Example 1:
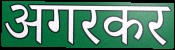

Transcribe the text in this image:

अगरकर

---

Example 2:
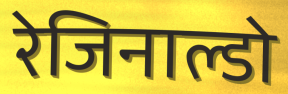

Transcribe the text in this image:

रेजिनाल्डो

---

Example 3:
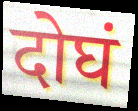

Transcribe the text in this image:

दोघं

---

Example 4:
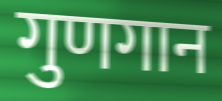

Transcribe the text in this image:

गुणगान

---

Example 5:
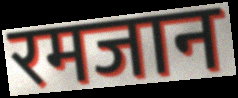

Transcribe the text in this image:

रमजान